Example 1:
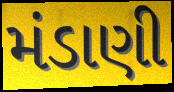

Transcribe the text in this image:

મંડાણી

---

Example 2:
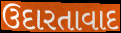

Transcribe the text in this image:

ઉદારતાવાદ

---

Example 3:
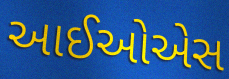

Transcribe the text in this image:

આઈઓએસ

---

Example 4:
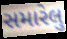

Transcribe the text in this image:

સમારેલુ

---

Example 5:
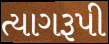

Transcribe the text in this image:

ત્યાગરૂપી